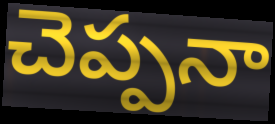
చెప్పనా